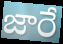
జారే